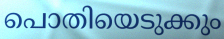
പൊതിയെടുക്കും